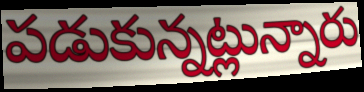
పడుకున్నట్లున్నారు